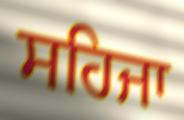
ਸਹਿਜਾ